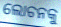
ଲୋଚନକୁ